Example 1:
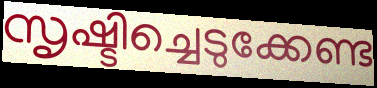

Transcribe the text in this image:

സൃഷ്ടിച്ചെടുക്കേണ്ട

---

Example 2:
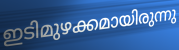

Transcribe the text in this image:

ഇടിമുഴക്കമായിരുന്നു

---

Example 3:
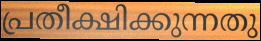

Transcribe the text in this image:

പ്രതീക്ഷിക്കുന്നതു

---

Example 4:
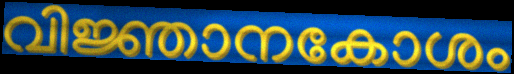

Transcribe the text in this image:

വിജ്ഞാനകോശം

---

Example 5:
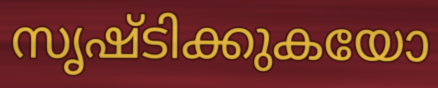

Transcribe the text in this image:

സൃഷ്ടിക്കുകയോ